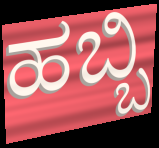
ಹಬ್ಬಿ